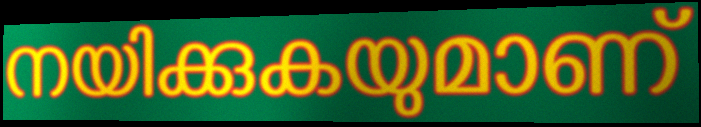
നയിക്കുകയുമാണ്